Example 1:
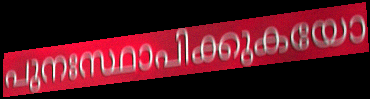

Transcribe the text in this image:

പുനഃസ്ഥാപിക്കുകയോ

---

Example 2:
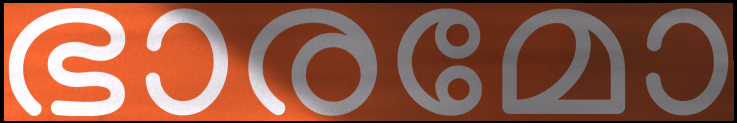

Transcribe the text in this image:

ഭാരമോ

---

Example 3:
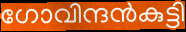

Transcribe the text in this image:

ഗോവിന്ദൻകുട്ടി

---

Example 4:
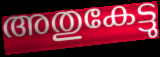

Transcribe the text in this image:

അതുകേട്ടു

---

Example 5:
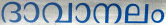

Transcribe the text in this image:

ദാവാനലം